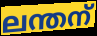
ലന്തന്